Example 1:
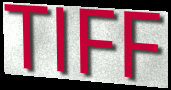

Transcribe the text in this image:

TIFF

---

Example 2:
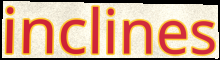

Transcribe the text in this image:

inclines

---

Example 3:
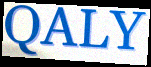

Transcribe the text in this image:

QALY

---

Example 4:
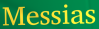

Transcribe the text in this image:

Messias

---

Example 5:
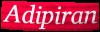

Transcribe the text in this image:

Adipiran